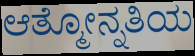
ಆತ್ಮೋನ್ನತಿಯ